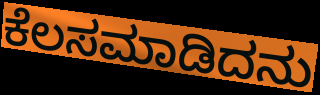
ಕೆಲಸಮಾಡಿದನು